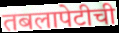
तबलापेटीची